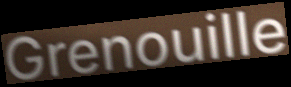
Grenouille